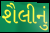
શૈલીનું